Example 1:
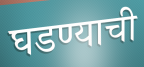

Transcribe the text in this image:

घडण्याची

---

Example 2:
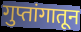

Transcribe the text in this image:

गुप्तांगातून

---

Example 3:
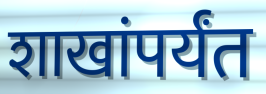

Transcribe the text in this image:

शाखांपर्यंत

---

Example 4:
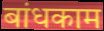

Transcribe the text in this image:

बांधकाम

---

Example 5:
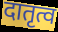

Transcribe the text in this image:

दातृत्व